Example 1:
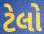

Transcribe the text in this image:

ટેલો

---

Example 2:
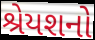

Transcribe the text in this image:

શ્રેયશનો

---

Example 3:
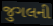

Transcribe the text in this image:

જુગલની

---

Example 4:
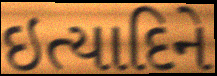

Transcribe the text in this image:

ઇત્‍યાદિને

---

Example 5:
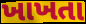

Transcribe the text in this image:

ખાખતા